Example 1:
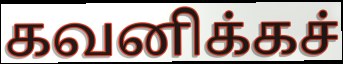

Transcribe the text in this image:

கவனிக்கச்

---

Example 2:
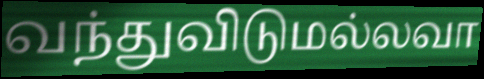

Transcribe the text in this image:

வந்துவிடுமல்லவா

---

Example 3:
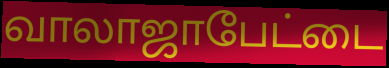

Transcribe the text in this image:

வாலாஜாபேட்டை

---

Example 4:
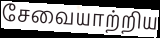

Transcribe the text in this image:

சேவையாற்றிய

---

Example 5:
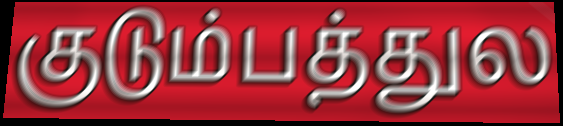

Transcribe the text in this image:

குடும்பத்துல